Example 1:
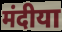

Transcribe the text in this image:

मंदीया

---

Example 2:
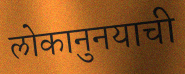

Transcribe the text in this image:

लोकानुनयाची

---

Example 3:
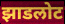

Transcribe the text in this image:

झाडलोट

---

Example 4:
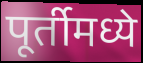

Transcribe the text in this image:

पूर्तीमध्ये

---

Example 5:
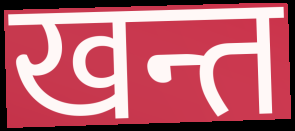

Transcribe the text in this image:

खन्त